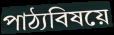
পাঠ্যবিষয়ে